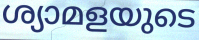
ശ്യാമളയുടെ